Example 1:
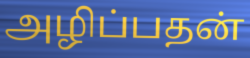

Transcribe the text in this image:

அழிப்பதன்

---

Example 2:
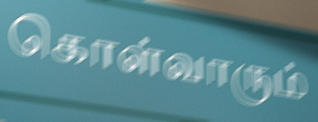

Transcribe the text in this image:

கொள்வாரும்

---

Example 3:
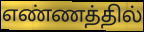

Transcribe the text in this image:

எண்ணத்தில்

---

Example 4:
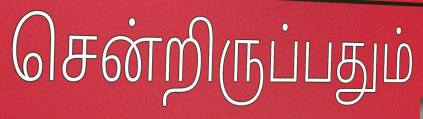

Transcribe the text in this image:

சென்றிருப்பதும்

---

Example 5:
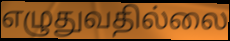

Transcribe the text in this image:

எழுதுவதில்லை